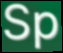
Sp